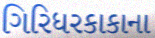
ગિરિધરકાકાના